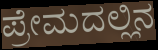
ಪ್ರೇಮದಲ್ಲಿನ